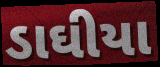
ડાઘીયા